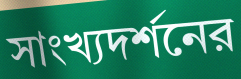
সাংখ্যদর্শনের